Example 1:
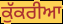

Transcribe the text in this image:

ਕੁੱਕਰੀਆ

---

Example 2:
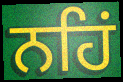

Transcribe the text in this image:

ਨਹਿਂ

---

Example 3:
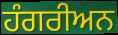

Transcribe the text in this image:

ਹੰਗਰੀਅਨ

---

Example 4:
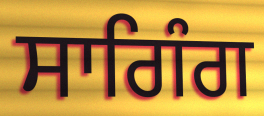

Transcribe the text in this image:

ਸਾਗਿੰਗ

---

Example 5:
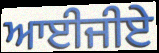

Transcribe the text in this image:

ਆਈਜੀਏ